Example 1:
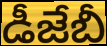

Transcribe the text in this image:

డీజేబీ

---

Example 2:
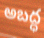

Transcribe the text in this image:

అబద్ధ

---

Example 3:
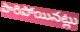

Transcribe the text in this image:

పారిపోయినట్లు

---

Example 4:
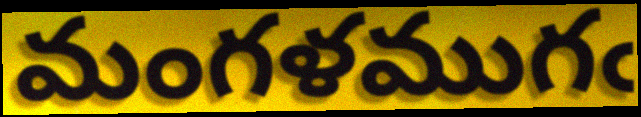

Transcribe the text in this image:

మంగళముగఁ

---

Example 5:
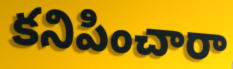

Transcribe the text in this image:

కనిపించారా